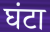
घंटा